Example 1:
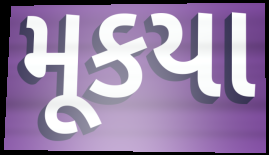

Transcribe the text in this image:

મૂકયા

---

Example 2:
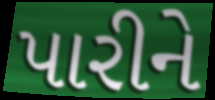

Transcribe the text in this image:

પારીને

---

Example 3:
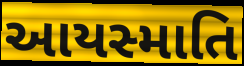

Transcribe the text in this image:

આયસ્માતિ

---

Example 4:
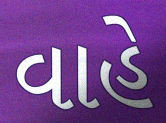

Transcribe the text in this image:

વાહે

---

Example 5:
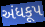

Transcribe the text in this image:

અંધકૂપ